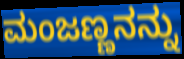
ಮಂಜಣ್ಣನನ್ನು